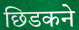
छिडकने